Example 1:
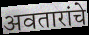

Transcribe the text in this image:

अवतारांचे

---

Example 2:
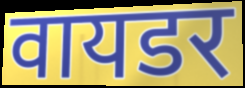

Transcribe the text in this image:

वायडर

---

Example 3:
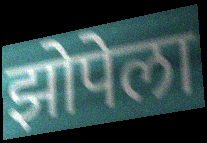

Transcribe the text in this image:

झोपेला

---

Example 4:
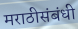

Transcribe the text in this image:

मराठीसंबंधी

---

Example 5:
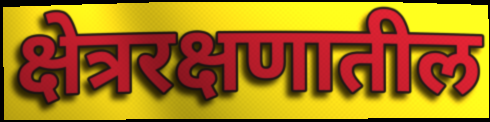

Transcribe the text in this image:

क्षेत्ररक्षणातील